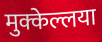
मुक्केल्लया